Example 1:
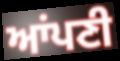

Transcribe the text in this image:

ਆਂਪਣੀ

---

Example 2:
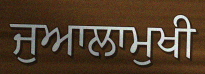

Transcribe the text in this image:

ਜੁਆਲਾਮੁਖੀ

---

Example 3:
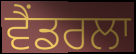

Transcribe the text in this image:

ਵੈਂਡਰਲਾ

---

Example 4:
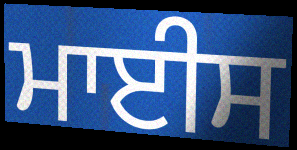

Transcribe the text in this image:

ਮਾਈਸ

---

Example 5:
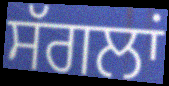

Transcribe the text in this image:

ਸੱਗਲਾਂ